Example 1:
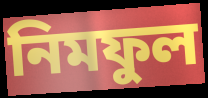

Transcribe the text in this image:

নিমফুল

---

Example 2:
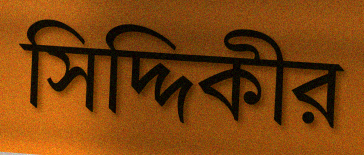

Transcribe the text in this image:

সিদ্দিকীর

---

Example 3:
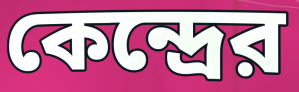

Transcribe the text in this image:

কেন্দ্রের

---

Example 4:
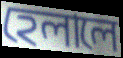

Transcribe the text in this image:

হেলালে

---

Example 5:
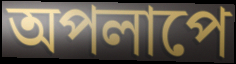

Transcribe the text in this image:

অপলাপে